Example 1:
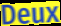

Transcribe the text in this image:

Deux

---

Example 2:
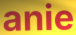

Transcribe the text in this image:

anie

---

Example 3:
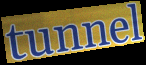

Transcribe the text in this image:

tunnel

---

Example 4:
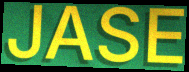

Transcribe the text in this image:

JASE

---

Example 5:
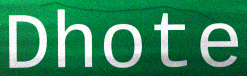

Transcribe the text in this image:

Dhote